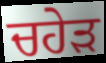
ਚਹੇੜ